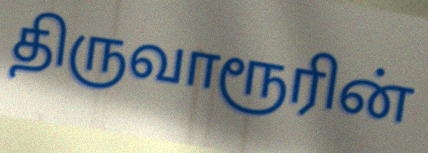
திருவாரூரின்